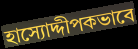
হাস্যোদ্দীপকভাবে